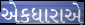
એકધારાએ